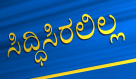
ಸಿದ್ಧಿಸಿರಲಿಲ್ಲ